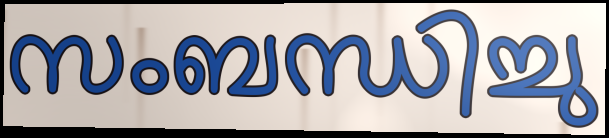
സംബന്ധിച്ചു